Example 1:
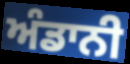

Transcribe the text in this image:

ਅੰਡਾਨੀ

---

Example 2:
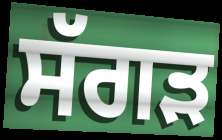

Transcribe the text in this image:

ਸੱਗੜ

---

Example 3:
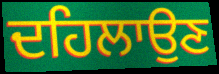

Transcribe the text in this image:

ਦਹਿਲਾਉਣ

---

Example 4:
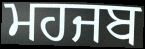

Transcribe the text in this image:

ਮਹਜਬ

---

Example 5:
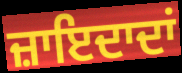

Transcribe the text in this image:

ਜ਼ਾਇਦਾਦਾਂ